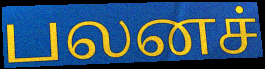
பலனச்